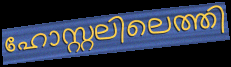
ഹോസ്റ്റലിലെത്തി